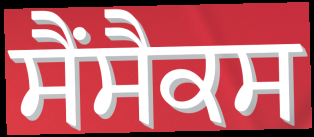
ਸੈਂਸੈਕਸ